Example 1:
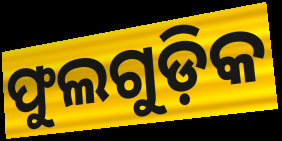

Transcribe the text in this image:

ଫୁଲଗୁଡ଼ିକ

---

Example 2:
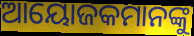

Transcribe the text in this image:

ଆୟୋଜକମାନଙ୍କୁ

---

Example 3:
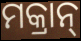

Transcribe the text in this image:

ମକ୍ରାନ୍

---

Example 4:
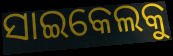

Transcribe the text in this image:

ସାଇକେଲକୁ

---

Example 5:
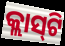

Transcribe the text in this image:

କ୍ଲାସ୍‌ଟି